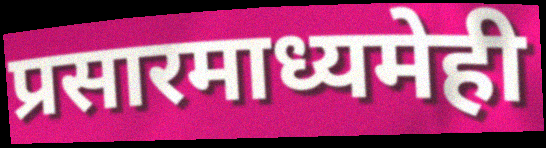
प्रसारमाध्यमेही